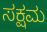
ಸಕ್ಷಮ